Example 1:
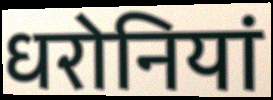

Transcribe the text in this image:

धरोनियां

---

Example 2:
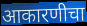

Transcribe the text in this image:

आकारणीचा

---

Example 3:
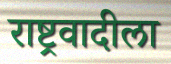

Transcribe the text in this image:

राष्ट्रवादीला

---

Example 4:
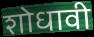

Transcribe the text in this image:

शोधावी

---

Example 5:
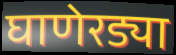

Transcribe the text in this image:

घाणेरड्या